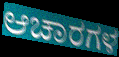
ಆಚಾರಗಳ